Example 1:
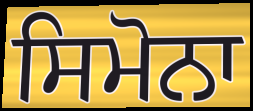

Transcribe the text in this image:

ਸਿਮੋਨਾ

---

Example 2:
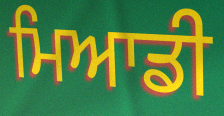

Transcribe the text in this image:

ਮਿਆਡੀ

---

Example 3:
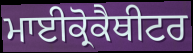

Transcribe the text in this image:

ਮਾਈਕ੍ਰੋਕੈਥੀਟਰ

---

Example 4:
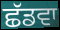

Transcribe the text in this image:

ਛੱਡਵਾ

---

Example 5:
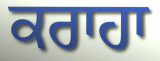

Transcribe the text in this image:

ਕਰਾਹਾ